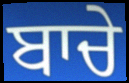
ਬਾਚੇ